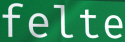
felte